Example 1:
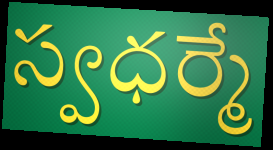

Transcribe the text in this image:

స్వధర్మే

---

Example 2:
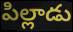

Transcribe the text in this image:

పిల్లాడు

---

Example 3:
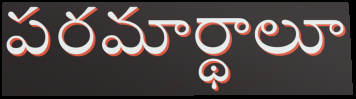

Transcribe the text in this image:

పరమార్థాలూ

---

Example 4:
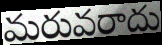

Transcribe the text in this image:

మరువరాదు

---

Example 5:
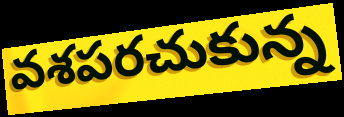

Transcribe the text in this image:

వశపరచుకున్న